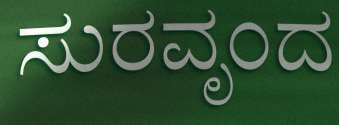
ಸುರವೃಂದ